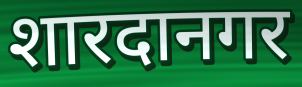
शारदानगर